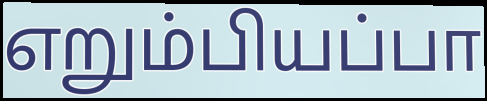
எறும்பியப்பா